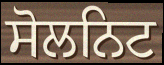
ਸੋਲਨਿਟ